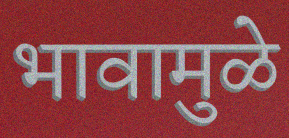
भावामुळे